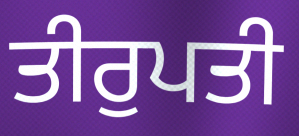
ਤੀਰੁਪਤੀ